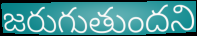
జరుగుతుందని